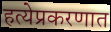
हत्येप्रकरणात